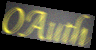
OAuth